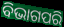
ବିଭାଗପରି